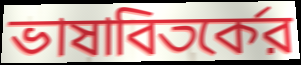
ভাষাবিতর্কের